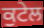
ਕੁਟੇਲ